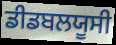
ਡੀਡਬਲਯੂਸੀ